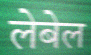
लेबेल